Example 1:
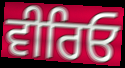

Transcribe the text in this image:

ਵੀਰਿਓ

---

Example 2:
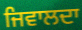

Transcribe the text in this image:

ਜਿਵਾਲਦਾ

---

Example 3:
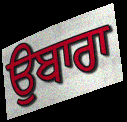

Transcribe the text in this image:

ਉਬਾਰਾ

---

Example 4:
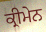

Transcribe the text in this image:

ਕ੍ਰੀਮੇਨ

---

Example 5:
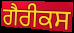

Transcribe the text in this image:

ਗੈਰੀਕਸ